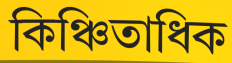
কিঞ্চিতাধিক